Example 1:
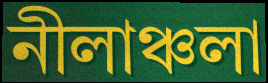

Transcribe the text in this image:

নীলাঞ্চলা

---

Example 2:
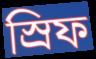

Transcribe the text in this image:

স্রিফ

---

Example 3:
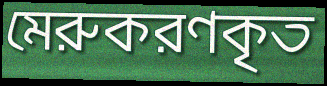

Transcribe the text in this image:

মেরুকরণকৃত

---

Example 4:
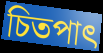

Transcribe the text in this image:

চিতপাৎ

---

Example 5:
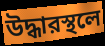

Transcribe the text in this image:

উদ্ধারস্থলে